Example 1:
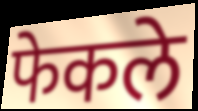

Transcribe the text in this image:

फेकले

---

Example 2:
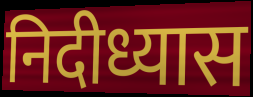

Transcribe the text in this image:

निदीध्यास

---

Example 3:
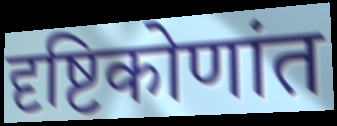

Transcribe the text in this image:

दृष्टिकोणांत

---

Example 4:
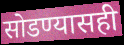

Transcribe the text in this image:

सोडण्यासही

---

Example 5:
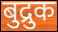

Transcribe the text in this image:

बुद्रुक